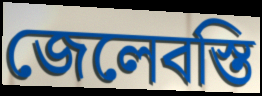
জেলেবস্তি